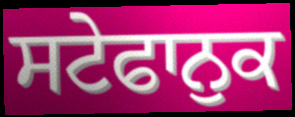
ਸਟੇਫਾਨੁਕ